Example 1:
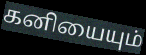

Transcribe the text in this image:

கனியையும்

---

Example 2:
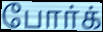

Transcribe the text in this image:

போர்க்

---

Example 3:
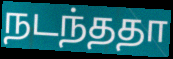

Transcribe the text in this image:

நடந்ததா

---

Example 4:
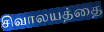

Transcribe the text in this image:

சிவாலயத்தை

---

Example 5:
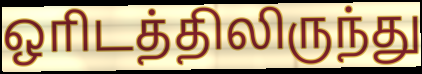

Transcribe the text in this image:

ஒரிடத்திலிருந்து